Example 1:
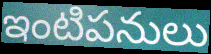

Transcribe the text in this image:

ఇంటిపనులు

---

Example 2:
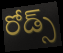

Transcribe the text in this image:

రోడ్స్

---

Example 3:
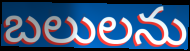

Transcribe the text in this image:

బలులను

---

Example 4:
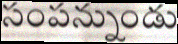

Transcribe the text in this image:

సంపన్నుండు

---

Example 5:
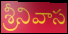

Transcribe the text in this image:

శ్రీనివాస